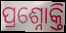
ପ୍ରଶ୍ନୋକ୍ତି